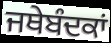
ਜਥੇਬੰਦਕਾਂ